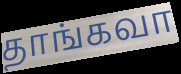
தாங்கவா